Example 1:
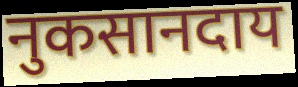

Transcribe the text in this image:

नुकसानदाय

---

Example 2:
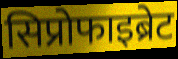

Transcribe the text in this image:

सिप्रोफाइब्रेट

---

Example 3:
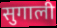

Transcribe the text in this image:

सुगाली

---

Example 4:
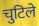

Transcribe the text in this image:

चुटिले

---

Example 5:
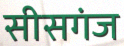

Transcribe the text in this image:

सीसगंज